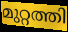
മുറ്റത്തി